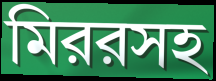
মিররসহ